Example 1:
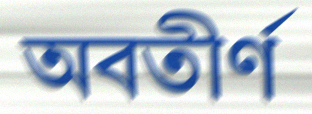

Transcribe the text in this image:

অবতীর্ণ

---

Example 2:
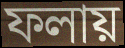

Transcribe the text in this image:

ফলায়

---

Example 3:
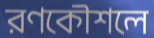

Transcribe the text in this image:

রণকৌশলে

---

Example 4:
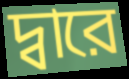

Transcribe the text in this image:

দ্বারে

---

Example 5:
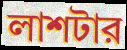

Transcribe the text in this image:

লাশটার